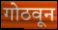
गोठवून